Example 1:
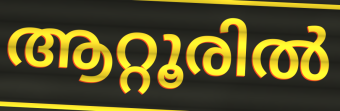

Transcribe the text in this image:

ആറ്റൂരിൽ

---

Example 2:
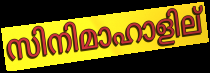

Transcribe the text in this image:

സിനിമാഹാളില്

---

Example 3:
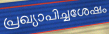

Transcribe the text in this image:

പ്രഖ്യാപിച്ചശേഷം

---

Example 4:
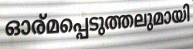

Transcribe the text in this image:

ഓര്മപ്പെടുത്തലുമായി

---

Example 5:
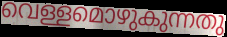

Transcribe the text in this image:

വെള്ളമൊഴുകുന്നതു